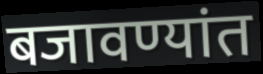
बजावण्यांत